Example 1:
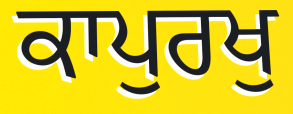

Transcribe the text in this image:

ਕਾਪੁਰਖੁ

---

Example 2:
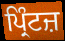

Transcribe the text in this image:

ਪ੍ਰਿੰਟਜ਼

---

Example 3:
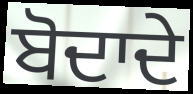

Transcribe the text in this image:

ਬੋਦਾਦੇ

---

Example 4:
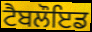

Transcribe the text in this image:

ਟੈਬਲੌਇਡ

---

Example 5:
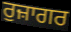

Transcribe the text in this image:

ਰੁਜ਼ਾਗਰ